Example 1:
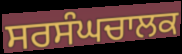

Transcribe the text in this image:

ਸਰਸੰਘਚਾਲਕ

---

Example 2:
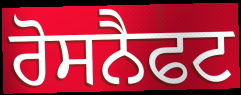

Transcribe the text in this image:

ਰੋਸਨੈਫਟ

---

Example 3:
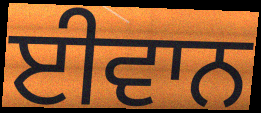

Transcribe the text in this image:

ਈਵਾਨ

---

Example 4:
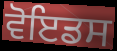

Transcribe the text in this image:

ਵੋਇਡਸ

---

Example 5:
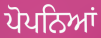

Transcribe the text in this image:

ਪੋਪਨਿਆਂ